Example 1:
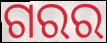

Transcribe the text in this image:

ଗରର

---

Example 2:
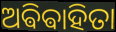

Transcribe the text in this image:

ଅଵିଵାହିତା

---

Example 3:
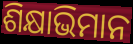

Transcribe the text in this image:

ଶିକ୍ଷାଭିମାନ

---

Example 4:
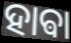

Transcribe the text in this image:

ହାଵା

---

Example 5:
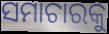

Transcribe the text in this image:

ସମାଚାରକୁ